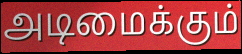
அடிமைக்கும்